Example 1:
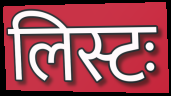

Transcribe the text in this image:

लिस्टः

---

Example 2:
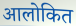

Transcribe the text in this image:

आलोकित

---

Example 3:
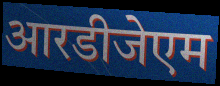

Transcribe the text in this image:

आरडीजेएम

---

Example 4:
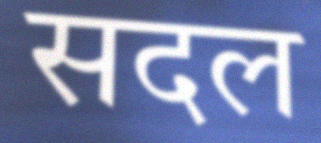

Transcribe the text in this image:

सदल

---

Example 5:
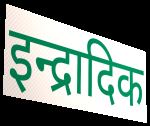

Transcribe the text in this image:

इन्द्रादिक